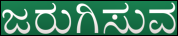
ಜರುಗಿಸುವ